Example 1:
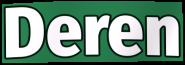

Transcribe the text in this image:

Deren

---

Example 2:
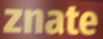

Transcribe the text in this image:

znate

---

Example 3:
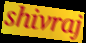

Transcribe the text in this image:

shivraj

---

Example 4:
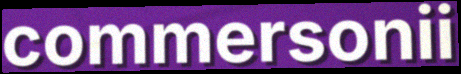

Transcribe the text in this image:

commersonii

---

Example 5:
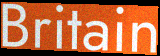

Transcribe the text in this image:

Britain